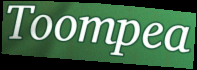
Toompea